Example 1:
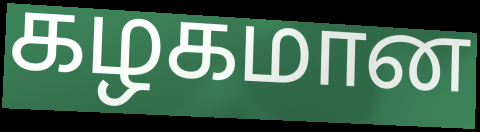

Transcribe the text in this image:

கழகமான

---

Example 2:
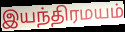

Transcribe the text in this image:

இயந்திரமயம்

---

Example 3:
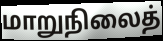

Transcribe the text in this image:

மாறுநிலைத்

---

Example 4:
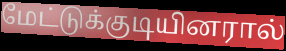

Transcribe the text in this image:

மேட்டுக்குடியினரால்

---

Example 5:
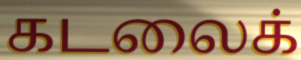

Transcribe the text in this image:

கடலைக்